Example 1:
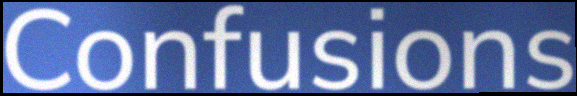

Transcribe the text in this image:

Confusions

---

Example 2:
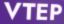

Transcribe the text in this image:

VTEP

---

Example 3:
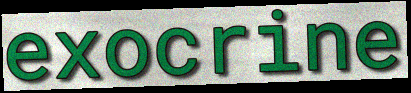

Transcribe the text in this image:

exocrine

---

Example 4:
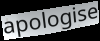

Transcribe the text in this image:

apologise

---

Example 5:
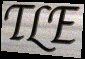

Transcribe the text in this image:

TLE